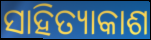
ସାହିତ୍ୟାକାଶ